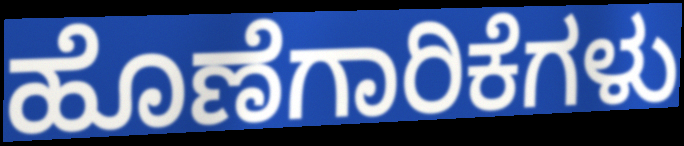
ಹೊಣೆಗಾರಿಕೆಗಳು